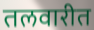
तलवारीत